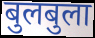
बुलबुला